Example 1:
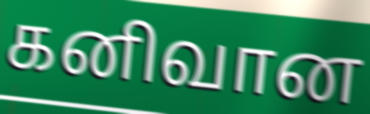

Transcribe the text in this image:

கனிவான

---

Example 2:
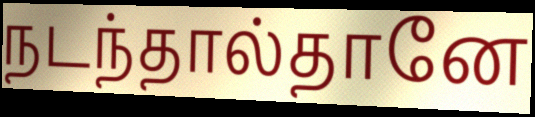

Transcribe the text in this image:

நடந்தால்தானே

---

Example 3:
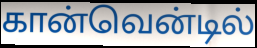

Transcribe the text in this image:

கான்வென்டில்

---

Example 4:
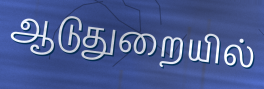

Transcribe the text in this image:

ஆடுதுறையில்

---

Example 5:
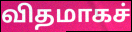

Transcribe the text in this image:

விதமாகச்